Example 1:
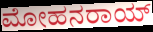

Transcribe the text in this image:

ಮೋಹನರಾಯ್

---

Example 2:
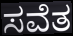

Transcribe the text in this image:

ಸವೆತ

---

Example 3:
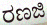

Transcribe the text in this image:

ರಣಜಿ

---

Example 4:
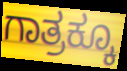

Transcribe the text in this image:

ಗಾತ್ರಕ್ಕೂ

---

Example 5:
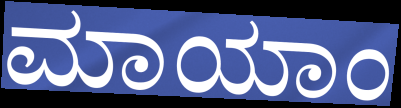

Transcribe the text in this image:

ಮಾಯಾಂ